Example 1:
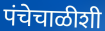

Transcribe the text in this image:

पंचेचाळीशी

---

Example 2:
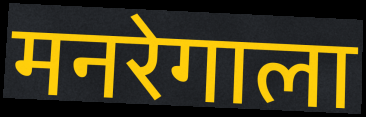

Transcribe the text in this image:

मनरेगाला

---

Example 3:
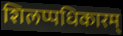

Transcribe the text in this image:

शिलप्पधिकारम्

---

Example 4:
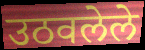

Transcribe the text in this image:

उठवलेले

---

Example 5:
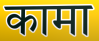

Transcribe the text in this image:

कामा